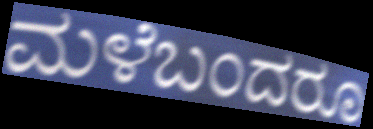
ಮಳೆಬಂದರೂ